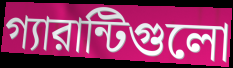
গ্যারান্টিগুলো